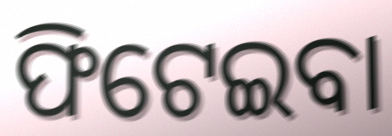
ଫିଟେଇବା